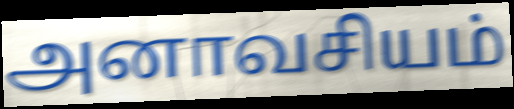
அனாவசியம்